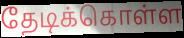
தேடிக்கொள்ள